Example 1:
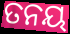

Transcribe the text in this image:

ତନୟ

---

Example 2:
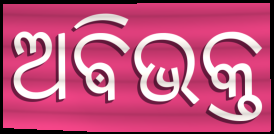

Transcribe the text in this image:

ଅଵିଭକ୍ତ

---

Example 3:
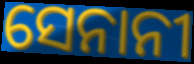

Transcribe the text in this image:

ସେନାନୀ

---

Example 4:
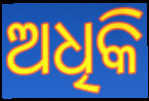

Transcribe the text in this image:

ଅଧିକି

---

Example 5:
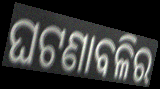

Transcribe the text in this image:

ଘଟଣାବଳିର